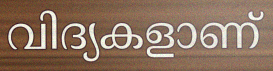
വിദ്യകളാണ്